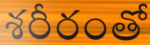
శరీరంతో